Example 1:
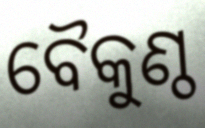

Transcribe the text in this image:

ବୈକୁଣ୍ଠ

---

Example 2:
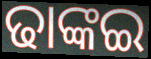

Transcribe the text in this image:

ଢାଙ୍କଇ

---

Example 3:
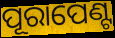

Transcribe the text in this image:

ପୂରାପେଣ୍ଟ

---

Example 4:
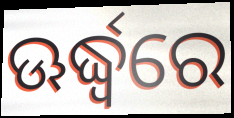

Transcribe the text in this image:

ଊର୍ଦ୍ଧ୍ୱରେ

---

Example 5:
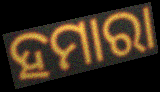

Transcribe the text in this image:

ହମାରା